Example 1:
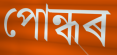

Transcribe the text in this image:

পোন্ধৰ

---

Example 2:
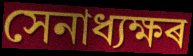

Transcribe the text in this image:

সেনাধ্যক্ষৰ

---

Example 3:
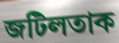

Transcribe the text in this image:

জটিলতাক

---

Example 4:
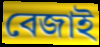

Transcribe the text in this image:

বেজাই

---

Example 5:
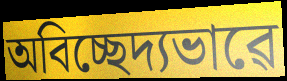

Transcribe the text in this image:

অবিচ্ছেদ্যভাৱে